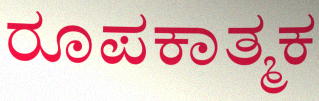
ರೂಪಕಾತ್ಮಕ